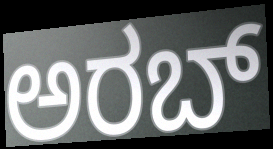
ಅರಬ್